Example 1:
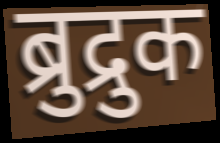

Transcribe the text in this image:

ब्रुद्रुक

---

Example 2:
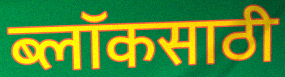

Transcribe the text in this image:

ब्लॉकसाठी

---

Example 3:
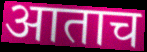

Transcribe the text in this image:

आताच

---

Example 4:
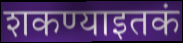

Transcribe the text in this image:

शकण्याइतकं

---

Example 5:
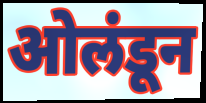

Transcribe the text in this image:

ओलंडून